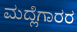
ಮದ್ಲೆಗಾರರ